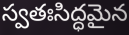
స్వతఃసిద్ధమైన